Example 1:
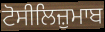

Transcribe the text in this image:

ਟੋਸੀਲਿਜ਼ੁਮਾਬ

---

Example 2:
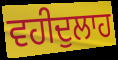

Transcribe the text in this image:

ਵਹੀਦੁਲਾਹ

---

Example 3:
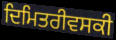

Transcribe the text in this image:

ਦਿਮਿਤਰੀਵਸਕੀ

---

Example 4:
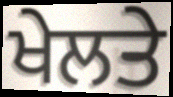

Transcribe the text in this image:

ਖੇਲਤੇ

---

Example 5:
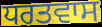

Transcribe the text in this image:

ਧਰਤਵਾਸ